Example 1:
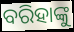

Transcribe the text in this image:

ବରିହାଙ୍କୁ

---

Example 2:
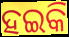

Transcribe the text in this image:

ହଇକି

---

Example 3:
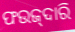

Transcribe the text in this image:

ଫଉଜ୍‌ଦାରି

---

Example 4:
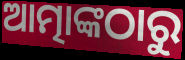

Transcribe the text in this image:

ଆତ୍ମାଙ୍କଠାରୁ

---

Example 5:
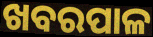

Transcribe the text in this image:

ଖବରପାଳ